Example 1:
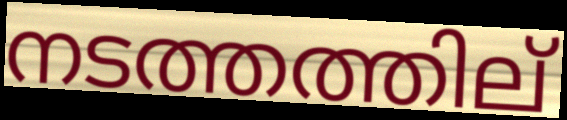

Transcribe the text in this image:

നടത്തത്തില്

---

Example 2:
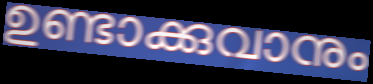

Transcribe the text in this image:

ഉണ്ടാക്കുവാനും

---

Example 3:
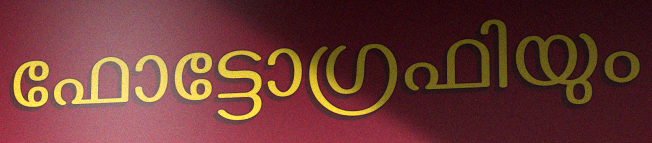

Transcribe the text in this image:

ഫോട്ടോഗ്രഫിയും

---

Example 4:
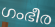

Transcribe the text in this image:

ഗംഭീര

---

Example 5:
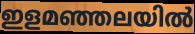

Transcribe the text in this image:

ഇളമഞ്ഞലയിൽ